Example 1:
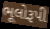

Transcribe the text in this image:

ભૂલોરૂપી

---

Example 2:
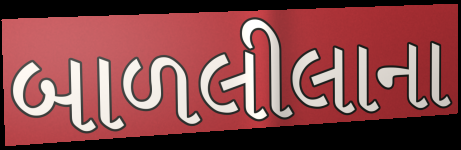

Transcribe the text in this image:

બાળલીલાના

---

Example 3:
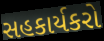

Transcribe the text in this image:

સહકાર્યકરો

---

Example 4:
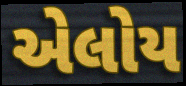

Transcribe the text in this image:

એલોય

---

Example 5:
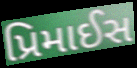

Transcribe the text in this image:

પ્રિમાઈસ